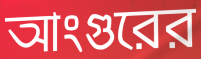
আংগুরের